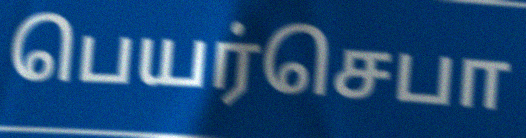
பெயர்செபா